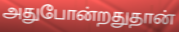
அதுபோன்றதுதான்